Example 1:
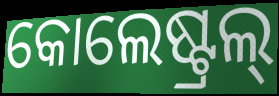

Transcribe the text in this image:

କୋଲେଷ୍ଟ୍ରଲ୍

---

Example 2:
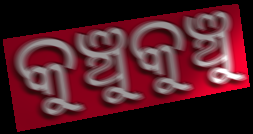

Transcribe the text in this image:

କୁଞ୍ଚୁକୁଞ୍ଚୁ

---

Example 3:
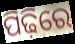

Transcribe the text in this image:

ପିଢ଼ିରେ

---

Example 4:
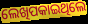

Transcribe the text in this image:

ଲେଖିପକାଇଥିଲେ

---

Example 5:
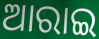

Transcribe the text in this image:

ଆରାଇ